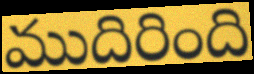
ముదిరింది